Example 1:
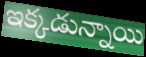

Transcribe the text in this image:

ఇక్కడున్నాయి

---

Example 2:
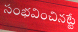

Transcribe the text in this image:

సంభవించినట్టే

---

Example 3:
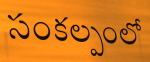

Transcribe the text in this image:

సంకల్పంలో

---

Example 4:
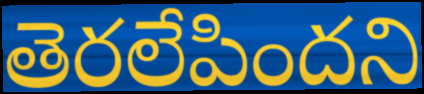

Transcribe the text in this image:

తెరలేపిందని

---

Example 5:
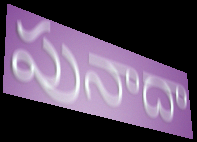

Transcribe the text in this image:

పునాదా